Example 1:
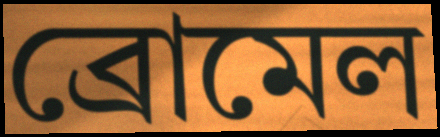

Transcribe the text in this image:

ব্রোমেল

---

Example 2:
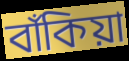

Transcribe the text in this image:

বাঁকিয়া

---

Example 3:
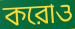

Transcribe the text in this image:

করোও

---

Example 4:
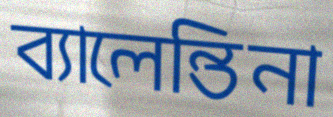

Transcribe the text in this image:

ব্যালেন্তিনা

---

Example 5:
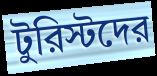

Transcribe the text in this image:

টুরিস্টদের